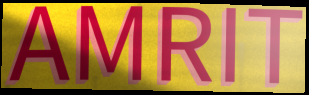
AMRIT